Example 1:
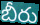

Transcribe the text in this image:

బీరు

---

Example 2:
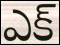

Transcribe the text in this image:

ఎక్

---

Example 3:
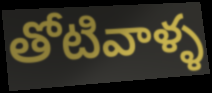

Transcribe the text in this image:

తోటివాళ్ళ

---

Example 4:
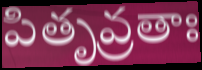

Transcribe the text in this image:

పితృవ్రతాః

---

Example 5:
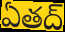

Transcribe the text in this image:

ఏతద్